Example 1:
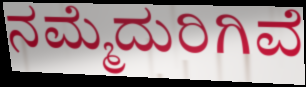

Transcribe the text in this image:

ನಮ್ಮೆದುರಿಗಿವೆ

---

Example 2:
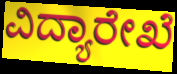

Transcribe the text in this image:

ವಿದ್ಯಾರೇಖೆ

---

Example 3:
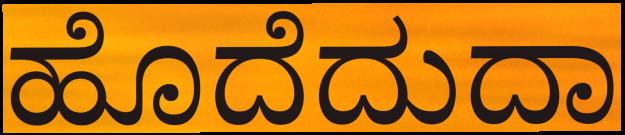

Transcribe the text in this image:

ಹೊದೆದುದಾ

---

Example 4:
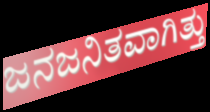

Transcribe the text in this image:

ಜನಜನಿತವಾಗಿತ್ತು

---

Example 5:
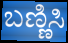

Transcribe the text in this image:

ಬಣ್ಣಿಸಿ